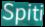
Spiti